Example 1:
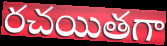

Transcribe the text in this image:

రచయితగా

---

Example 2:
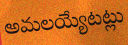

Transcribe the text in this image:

అమలయ్యేటట్లు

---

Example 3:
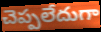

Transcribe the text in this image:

చెప్పలేదుగా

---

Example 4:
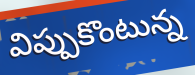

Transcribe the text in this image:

విప్పుకొంటున్న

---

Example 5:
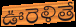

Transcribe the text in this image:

ఊరెళితే